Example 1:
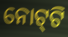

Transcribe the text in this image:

ନୋଟ୍‌ଟି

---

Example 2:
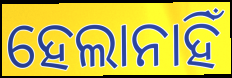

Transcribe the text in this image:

ହେଲାନାହିଁ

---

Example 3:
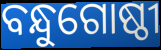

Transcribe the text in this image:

ବନ୍ଧୁଗୋଷ୍ଠୀ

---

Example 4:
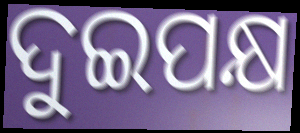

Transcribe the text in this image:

ଦୁଇପକ୍ଷ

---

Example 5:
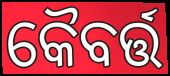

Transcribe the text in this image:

କୈବର୍ତ୍ତ